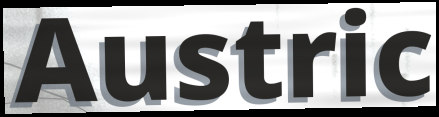
Austric